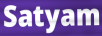
Satyam